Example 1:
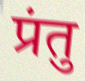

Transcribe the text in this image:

प्रंतु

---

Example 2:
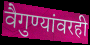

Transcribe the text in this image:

वैगुण्यांवरही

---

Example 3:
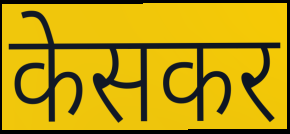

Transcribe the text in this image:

केसकर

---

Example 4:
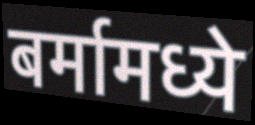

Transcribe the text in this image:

बर्मामध्ये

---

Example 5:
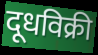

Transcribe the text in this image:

दूधविक्री